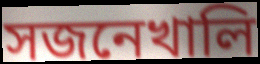
সজনেখালি